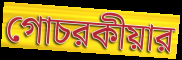
গোচরকীয়ার